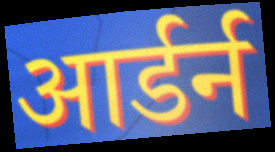
आर्डर्न